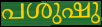
പശുഷു